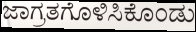
ಜಾಗ್ರತಗೊಳಿಸಿಕೊಂಡು